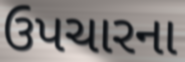
ઉપચારના